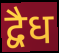
द्वैध